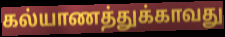
கல்யாணத்துக்காவது